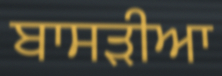
ਬਾਸੜੀਆ